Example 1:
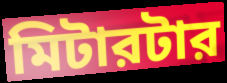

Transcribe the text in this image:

মিটারটার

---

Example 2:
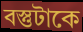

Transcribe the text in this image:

বস্তুটাকে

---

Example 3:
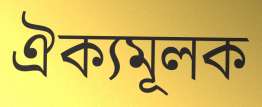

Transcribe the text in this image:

ঐক্যমূলক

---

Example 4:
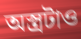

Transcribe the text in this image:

অস্ত্রটাও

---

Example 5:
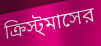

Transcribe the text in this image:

ক্রিস্ট্‌মাসের